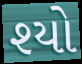
શ્યો